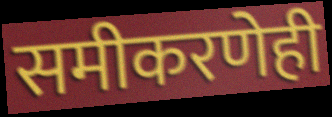
समीकरणेही